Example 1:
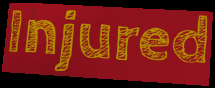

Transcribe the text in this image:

Injured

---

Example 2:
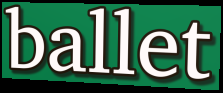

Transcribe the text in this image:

ballet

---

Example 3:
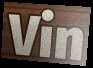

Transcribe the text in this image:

Vin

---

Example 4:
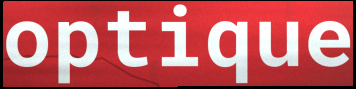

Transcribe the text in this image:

optique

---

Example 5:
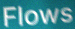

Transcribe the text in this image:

Flows